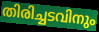
തിരിച്ചടവിനും